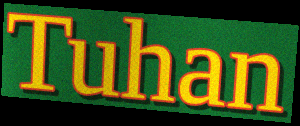
Tuhan